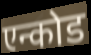
एन्कोड